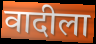
वादीला